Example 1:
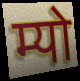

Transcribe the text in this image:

म्यो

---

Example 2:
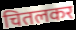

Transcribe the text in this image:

चितलकर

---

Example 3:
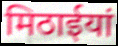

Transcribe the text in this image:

मिठाईयां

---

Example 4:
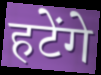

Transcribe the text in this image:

हटेंगे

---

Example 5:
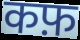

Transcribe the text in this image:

कफ़